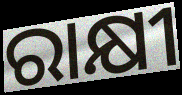
ରାକ୍ଷୀ